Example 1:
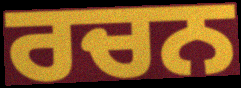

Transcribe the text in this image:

ਰਚਨ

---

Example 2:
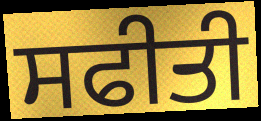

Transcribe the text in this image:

ਸਫੀਤੀ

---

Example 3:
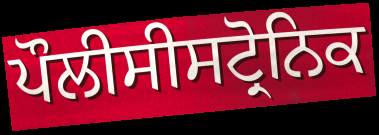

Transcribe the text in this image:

ਪੌਲੀਸੀਸਟ੍ਰੋਨਿਕ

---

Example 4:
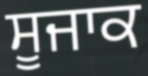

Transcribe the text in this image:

ਸੂਜਾਕ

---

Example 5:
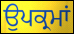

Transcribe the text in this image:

ਉਪਕ੍ਰਮਾਂ